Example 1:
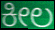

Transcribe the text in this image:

ಕೀಲ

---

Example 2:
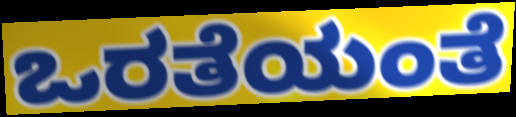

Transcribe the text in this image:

ಒರತೆಯಂತೆ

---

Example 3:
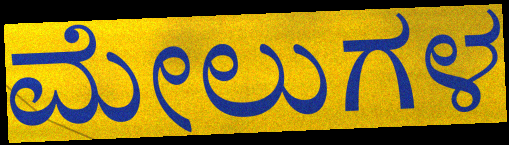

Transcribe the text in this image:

ಮೇಲುಗಳ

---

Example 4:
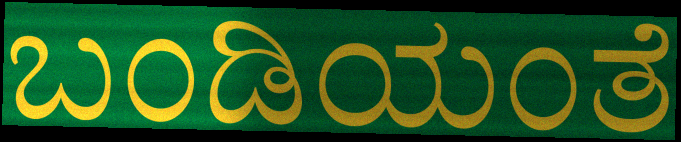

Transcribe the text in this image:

ಬಂಡಿಯಂತೆ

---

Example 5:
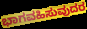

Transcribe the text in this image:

ಭಾಗವಹಿಸುವುದರ